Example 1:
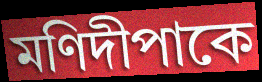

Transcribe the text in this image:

মণিদীপাকে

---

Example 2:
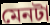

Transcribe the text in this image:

মেনটা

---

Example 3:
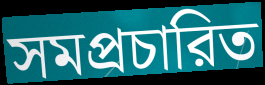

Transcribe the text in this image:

সমপ্রচারিত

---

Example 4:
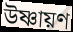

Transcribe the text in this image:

উষ্ণায়ণ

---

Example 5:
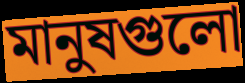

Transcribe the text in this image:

মানুষগুলো